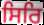
ਸਿਰਿ